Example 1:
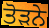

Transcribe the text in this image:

ਤੋੜਨੇ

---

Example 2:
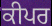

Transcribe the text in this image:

ਕੀਪਰ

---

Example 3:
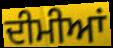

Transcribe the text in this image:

ਦੀਮੀਆਂ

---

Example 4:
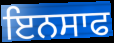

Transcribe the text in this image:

ਇਨਸਾਫ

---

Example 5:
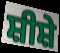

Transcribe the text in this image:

ਸ਼ੀਸ਼ੇ